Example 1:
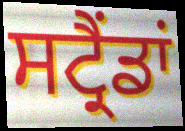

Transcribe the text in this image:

ਸਟ੍ਰੈਂਡਾਂ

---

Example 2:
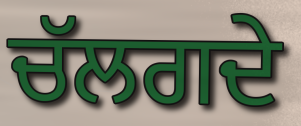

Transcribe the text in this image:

ਚੱਲਗਦੇ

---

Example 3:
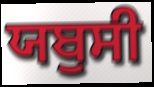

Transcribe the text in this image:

ਯਬੁਸੀ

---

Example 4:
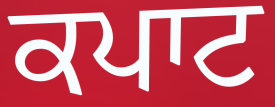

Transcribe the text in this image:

ਕਪਾਟ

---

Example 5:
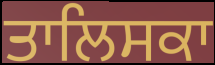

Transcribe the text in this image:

ਤਾਲਿਸਕਾ